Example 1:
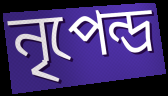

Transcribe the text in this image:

নৃপেন্দ্র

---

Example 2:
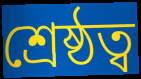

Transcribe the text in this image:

শ্রেষ্ঠত্ব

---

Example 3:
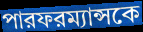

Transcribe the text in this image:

পারফরম্যান্সকে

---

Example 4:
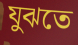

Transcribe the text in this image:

যুঝতে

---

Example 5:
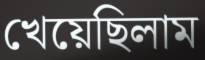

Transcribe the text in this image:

খেয়েছিলাম